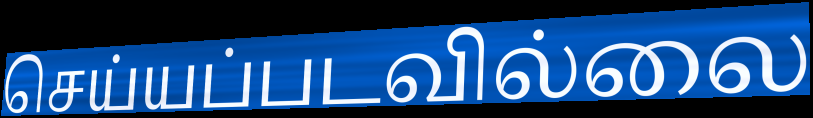
செய்யப்படவில்லை